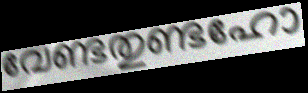
വേണ്ടതുണ്ടഹോ